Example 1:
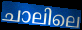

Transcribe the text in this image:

ചാലിലെ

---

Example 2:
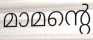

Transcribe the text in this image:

മാമന്റെ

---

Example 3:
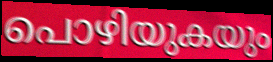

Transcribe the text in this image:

പൊഴിയുകയും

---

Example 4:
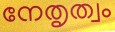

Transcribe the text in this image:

നേതൃത്വം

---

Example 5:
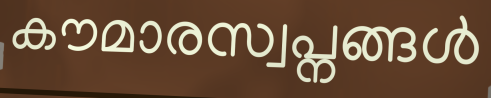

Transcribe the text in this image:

കൗമാരസ്വപ്നങ്ങൾ